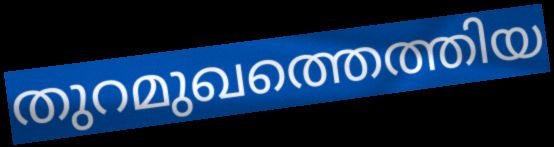
തുറമുഖത്തെത്തിയ